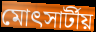
মোৎসার্টীয়